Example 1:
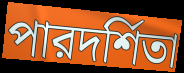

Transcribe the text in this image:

পারদর্শিতা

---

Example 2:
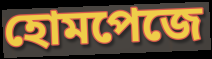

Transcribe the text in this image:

হোমপেজে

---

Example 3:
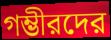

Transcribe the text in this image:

গম্ভীরদের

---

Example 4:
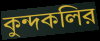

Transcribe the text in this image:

কুন্দকলির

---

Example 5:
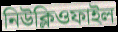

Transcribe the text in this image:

নিউক্লিওফাইল